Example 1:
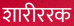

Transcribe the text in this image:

शारीररक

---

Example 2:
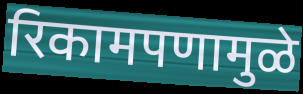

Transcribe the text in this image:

रिकामपणामुळे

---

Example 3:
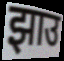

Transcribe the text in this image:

झाउ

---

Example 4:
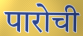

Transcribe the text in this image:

पारोची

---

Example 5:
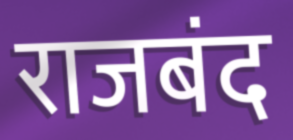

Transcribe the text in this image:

राजबंद